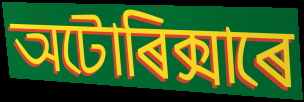
অটোৰিক্সাৰে